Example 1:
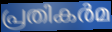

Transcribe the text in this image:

പ്രതികർമ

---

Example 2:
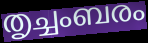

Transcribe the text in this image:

തൃച്ചംബരം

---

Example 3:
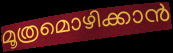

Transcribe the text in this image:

മൂത്രമൊഴിക്കാൻ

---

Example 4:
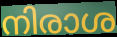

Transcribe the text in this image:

നിരാശ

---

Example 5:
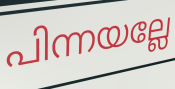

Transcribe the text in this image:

പിന്നയല്ലേ